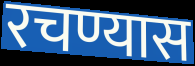
रचण्यास